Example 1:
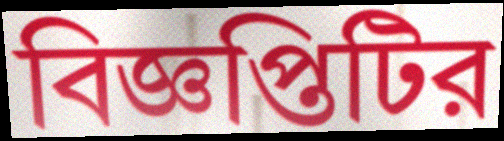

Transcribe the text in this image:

বিজ্ঞপ্তিটির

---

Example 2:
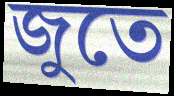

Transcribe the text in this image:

জুতে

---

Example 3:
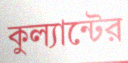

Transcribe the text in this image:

কুল্যান্টের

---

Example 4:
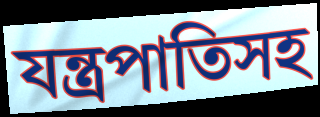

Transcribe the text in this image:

যন্ত্রপাতিসহ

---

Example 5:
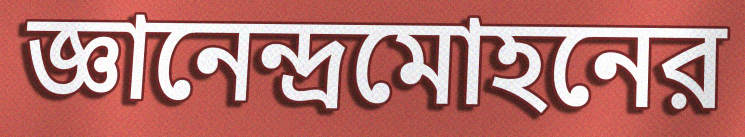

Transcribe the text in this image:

জ্ঞানেন্দ্রমোহনের